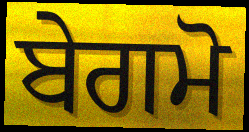
ਬੇਗਮੋ